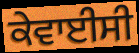
ਕੇਵਾਈਸੀ